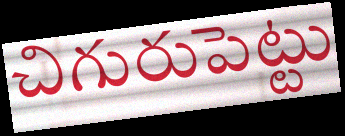
చిగురుపెట్టు